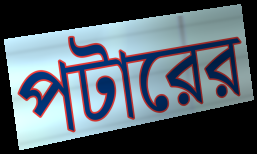
পটারের